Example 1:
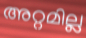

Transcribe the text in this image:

അറ്റമില്ല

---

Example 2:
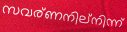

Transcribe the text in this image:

സവര്ണനില്നിന്ന്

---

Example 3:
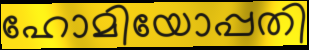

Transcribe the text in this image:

ഹോമിയോപ്പതി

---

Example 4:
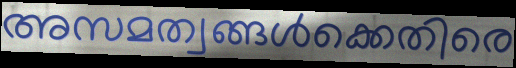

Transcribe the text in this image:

അസമത്വങ്ങൾക്കെതിരെ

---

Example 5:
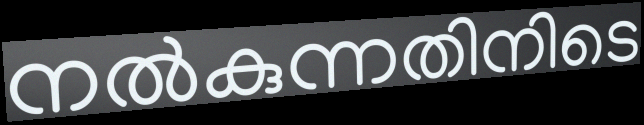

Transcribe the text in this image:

നൽകുന്നതിനിടെ